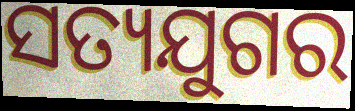
ସତ୍ୟଯୁଗର